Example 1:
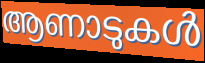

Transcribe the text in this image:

ആണാടുകൾ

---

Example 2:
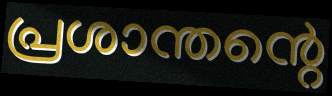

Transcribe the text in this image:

പ്രശാന്തന്റെ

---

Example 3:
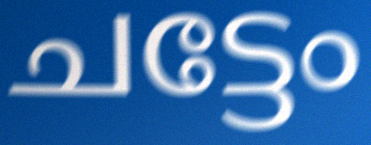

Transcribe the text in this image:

ചട്ടേം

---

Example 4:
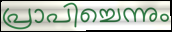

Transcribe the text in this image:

പ്രാപിച്ചെന്നും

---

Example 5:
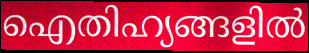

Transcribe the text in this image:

ഐതിഹ്യങ്ങളിൽ